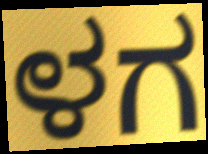
ಳಗ